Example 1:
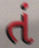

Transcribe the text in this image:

તં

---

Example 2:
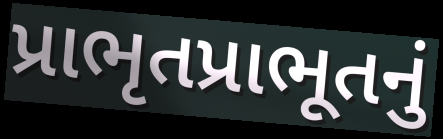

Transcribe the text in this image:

પ્રાભૃતપ્રાભૂતનું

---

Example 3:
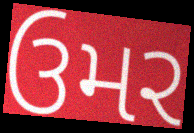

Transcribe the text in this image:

ઉમર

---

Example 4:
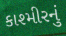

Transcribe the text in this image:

કાશ્મીરનું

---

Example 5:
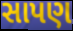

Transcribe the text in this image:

સાપણ